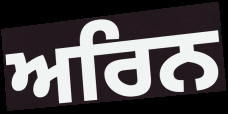
ਅਰਿਨ